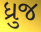
ધ્રુજ